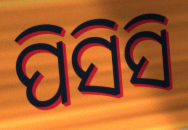
ପିସିସି